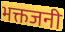
भक्तजनी